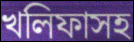
খলিফাসহ